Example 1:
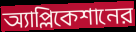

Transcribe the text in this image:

অ্যাপ্লিকেশানের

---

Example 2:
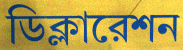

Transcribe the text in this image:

ডিক্লারেশন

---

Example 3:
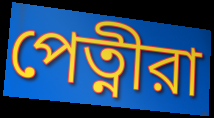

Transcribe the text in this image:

পেত্নীরা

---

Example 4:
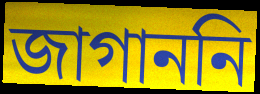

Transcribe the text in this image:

জাগাননি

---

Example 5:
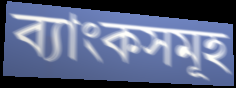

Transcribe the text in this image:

ব্যাংকসমূহ